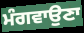
ਮੰਗਵਾਉਣਾ